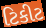
ટિકીટ